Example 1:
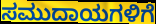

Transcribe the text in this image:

ಸಮುದಾಯಗಳಿಗೆ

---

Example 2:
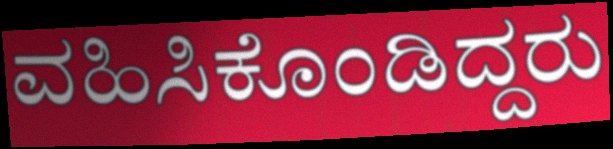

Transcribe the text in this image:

ವಹಿಸಿಕೊಂಡಿದ್ದರು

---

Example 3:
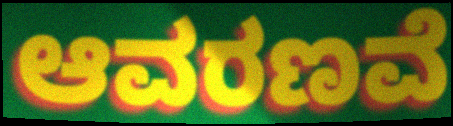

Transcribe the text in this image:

ಆವರಣವೆ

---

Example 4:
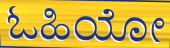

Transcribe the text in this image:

ಓಹಿಯೋ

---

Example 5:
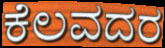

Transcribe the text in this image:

ಕೆಲವದರ